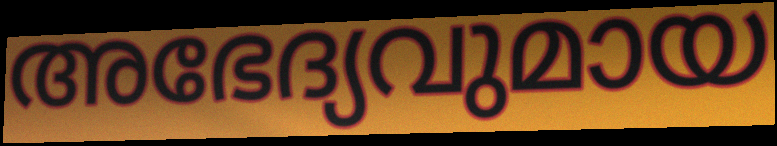
അഭേദ്യവുമായ